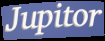
Jupitor